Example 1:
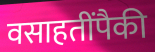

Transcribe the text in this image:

वसाहतींपैकी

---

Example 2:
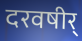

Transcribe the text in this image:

दरवषीर्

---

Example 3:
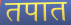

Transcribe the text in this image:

तपात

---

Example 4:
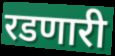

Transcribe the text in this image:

रडणारी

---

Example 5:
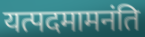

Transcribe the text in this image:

यत्पदमामनंति